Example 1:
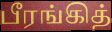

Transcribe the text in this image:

பீரங்கித்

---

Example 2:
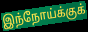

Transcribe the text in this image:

இந்நோய்க்குக்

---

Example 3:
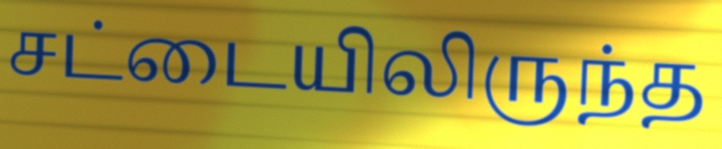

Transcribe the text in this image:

சட்டையிலிருந்த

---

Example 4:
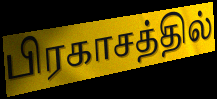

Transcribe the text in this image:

பிரகாசத்தில்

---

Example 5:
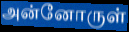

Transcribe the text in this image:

அன்னோருள்